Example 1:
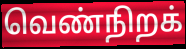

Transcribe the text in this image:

வெண்நிறக்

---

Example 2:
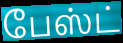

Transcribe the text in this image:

பேஸ்ட்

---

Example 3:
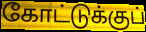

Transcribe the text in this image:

கோட்டுக்குப்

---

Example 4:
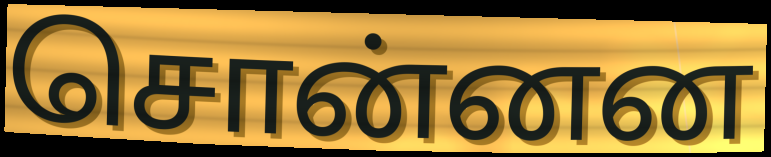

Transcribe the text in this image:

சொன்னன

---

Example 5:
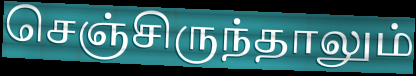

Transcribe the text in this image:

செஞ்சிருந்தாலும்